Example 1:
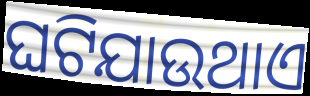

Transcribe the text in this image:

ଘଟିଯାଉଥାଏ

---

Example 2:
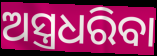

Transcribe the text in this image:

ଅସ୍ତ୍ରଧରିବା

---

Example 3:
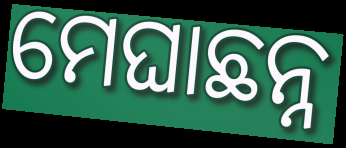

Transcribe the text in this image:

ମେଘାଛନ୍ନ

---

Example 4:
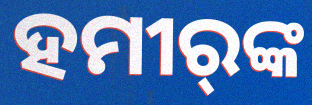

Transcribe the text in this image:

ହମୀର୍‍ଙ୍କ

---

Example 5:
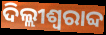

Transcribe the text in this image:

ଦିଲ୍ଲୀଶ୍ୱରାବ୍ଦ